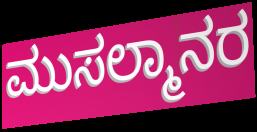
ಮುಸಲ್ಮಾನರ